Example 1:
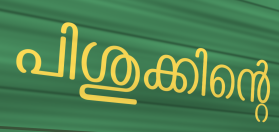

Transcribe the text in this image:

പിശുക്കിന്റെ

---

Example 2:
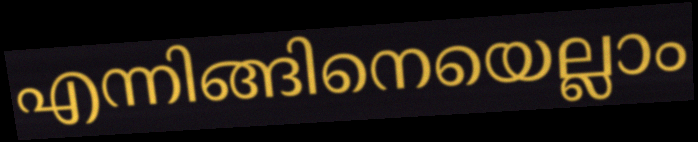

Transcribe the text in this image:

എന്നിങ്ങിനെയെല്ലാം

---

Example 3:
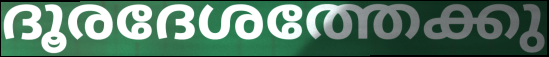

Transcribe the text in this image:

ദൂരദേശത്തേക്കു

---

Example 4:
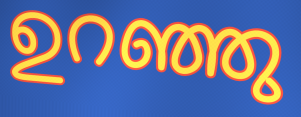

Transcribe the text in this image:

ഉറഞ്ഞു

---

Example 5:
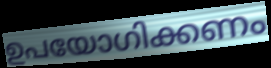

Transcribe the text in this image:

ഉപയോഗിക്കണം